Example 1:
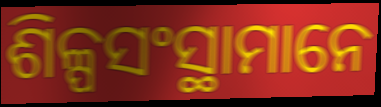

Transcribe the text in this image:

ଶିଳ୍ପସଂସ୍ଥାମାନେ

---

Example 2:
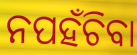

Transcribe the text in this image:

ନପହଁଚିବା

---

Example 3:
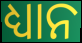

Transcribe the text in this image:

ଧ୍ୟାନ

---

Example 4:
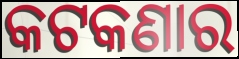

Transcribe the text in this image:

କଟକଣାର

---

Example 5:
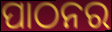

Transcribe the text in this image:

ପାଠନର